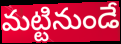
మట్టినుండే